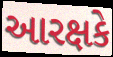
આરક્ષકે